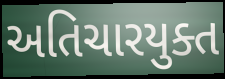
અતિચારયુક્ત